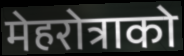
मेहरोत्राको